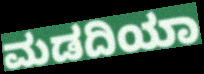
ಮಡದಿಯಾ